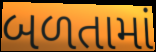
બળતામાં